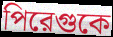
পিরেগুকে